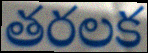
తరలక